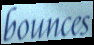
bounces